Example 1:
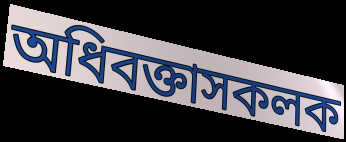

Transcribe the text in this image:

অধিবক্তাসকলক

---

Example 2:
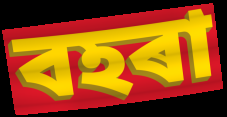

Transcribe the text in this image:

বহৰা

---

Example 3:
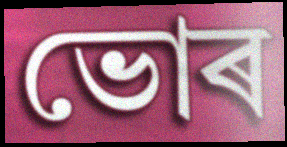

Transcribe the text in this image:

ভোৰ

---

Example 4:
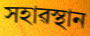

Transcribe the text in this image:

সহাৱস্থান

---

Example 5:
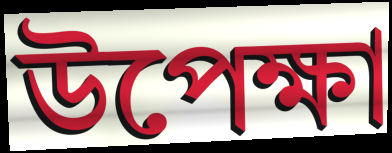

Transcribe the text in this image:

উপেক্ষা